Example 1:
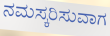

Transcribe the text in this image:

ನಮಸ್ಕರಿಸುವಾಗ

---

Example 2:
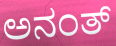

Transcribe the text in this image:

ಅನಂತ್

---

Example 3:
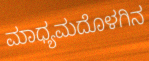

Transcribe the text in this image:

ಮಾಧ್ಯಮದೊಳಗಿನ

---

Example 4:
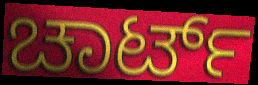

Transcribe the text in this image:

ಚಾರ್ಟ್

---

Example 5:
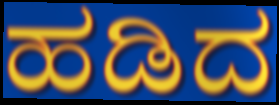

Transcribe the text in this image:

ಹಡಿದ